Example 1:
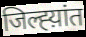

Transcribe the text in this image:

जिल्ह्य़ांत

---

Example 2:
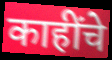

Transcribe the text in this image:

काहींचे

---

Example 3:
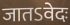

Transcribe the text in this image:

जातऽवेदः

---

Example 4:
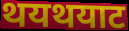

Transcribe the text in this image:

थयथयाट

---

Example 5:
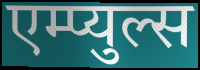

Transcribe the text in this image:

एम्प्युल्स